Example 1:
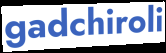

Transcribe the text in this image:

gadchiroli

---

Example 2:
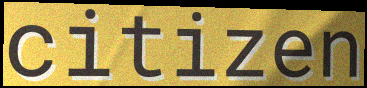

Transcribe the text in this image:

citizen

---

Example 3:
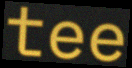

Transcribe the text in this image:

tee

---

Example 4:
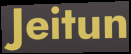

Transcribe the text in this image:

Jeitun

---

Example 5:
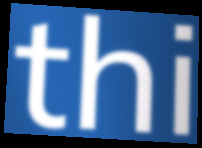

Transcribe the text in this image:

thi